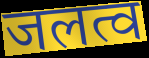
जलत्व